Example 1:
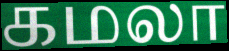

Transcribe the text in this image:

கமலா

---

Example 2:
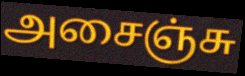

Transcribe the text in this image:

அசைஞ்சு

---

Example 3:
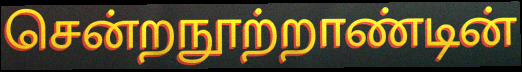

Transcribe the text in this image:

சென்றநூற்றாண்டின்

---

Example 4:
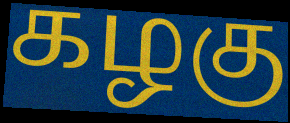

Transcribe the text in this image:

கழகு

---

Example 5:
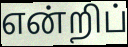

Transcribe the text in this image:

என்றிப்